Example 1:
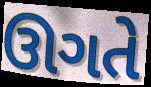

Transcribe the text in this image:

ઊગતે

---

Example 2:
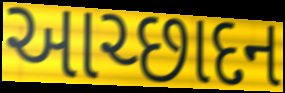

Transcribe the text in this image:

આચ્છાદન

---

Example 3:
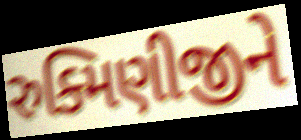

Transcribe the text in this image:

રુક્મિણીજીને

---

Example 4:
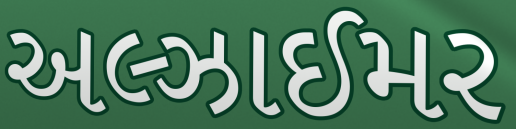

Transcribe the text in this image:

અલ્ઝાઈમર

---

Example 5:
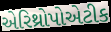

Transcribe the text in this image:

એરિથ્રોપોએટીક